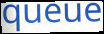
queue